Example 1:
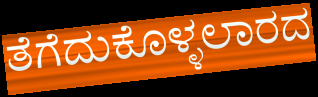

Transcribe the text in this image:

ತೆಗೆದುಕೊಳ್ಳಲಾರದ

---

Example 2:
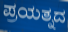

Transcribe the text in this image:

ಪ್ರಯತ್ನದ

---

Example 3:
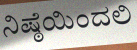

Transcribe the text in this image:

ನಿಷ್ಠೆಯಿಂದಲಿ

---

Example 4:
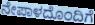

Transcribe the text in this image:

ನೇಪಾಳದೊಂದಿಗೆ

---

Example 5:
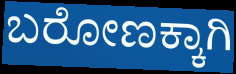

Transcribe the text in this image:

ಬರೋಣಕ್ಕಾಗಿ